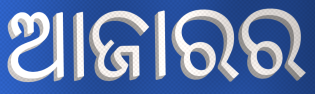
ଆଜାରର